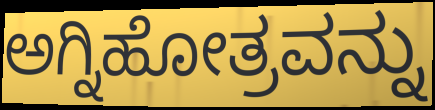
ಅಗ್ನಿಹೋತ್ರವನ್ನು